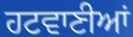
ਹਟਵਾਣੀਆਂ